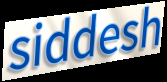
siddesh